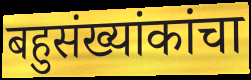
बहुसंख्यांकांचा